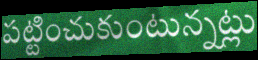
పట్టించుకుంటున్నట్లు